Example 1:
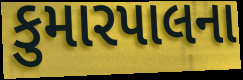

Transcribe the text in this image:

કુમારપાલના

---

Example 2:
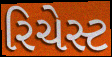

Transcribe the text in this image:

રિચેસ્ટ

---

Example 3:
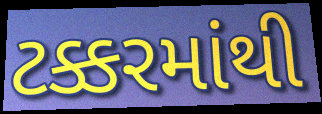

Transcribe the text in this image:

ટક્કરમાંથી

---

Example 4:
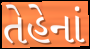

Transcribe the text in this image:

તેહેનાં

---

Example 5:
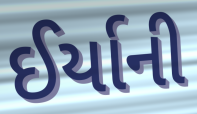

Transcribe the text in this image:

ઈર્યાની